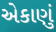
એકાણું